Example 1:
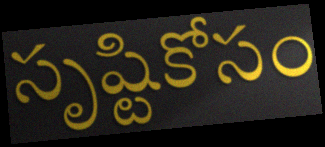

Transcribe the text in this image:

సృష్టికోసం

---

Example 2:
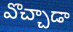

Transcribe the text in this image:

వొచ్చాడా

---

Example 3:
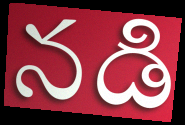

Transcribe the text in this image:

నడి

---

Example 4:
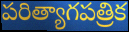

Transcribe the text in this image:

పరిత్యాగపత్రిక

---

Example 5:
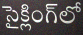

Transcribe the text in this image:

సైక్లింగ్‌లో